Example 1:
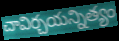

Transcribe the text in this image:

చావిర్చయన్నిత్యం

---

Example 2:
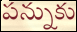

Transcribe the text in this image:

పన్నుకు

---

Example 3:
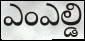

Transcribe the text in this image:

ఎంఎల్డి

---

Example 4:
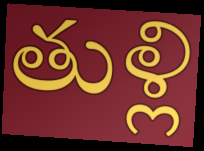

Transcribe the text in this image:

తుళ్లి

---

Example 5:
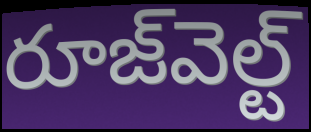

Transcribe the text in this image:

రూజ్‌వెల్ట్